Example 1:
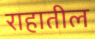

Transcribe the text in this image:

राहातील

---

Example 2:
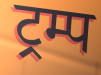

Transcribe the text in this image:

ट्रम्प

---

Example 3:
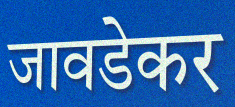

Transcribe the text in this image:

जावडेकर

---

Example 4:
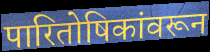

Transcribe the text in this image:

पारितोषिकांवरून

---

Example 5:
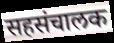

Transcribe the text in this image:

सहसंचालक